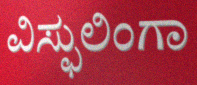
ವಿಸ್ಫುಲಿಂಗಾ